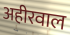
अहीरवाल